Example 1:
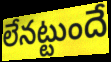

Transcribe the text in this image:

లేనట్టుందే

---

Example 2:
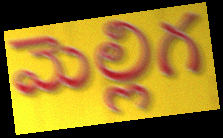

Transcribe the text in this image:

మెల్లిగ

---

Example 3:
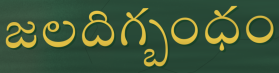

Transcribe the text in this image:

జలదిగ్బంధం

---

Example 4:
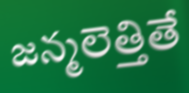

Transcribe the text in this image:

జన్మలెత్తితే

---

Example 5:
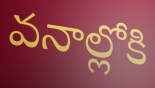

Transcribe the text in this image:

వనాల్లోకి